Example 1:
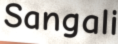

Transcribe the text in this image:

Sangali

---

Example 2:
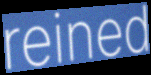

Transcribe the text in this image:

reined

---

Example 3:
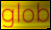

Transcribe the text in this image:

glob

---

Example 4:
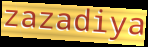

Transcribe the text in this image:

zazadiya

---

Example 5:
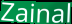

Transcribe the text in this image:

Zainal